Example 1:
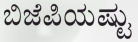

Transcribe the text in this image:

ಬಿಜೆಪಿಯಷ್ಟು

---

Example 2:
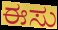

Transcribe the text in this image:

ಈಸು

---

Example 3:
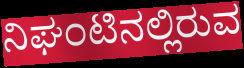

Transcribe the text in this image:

ನಿಘಂಟಿನಲ್ಲಿರುವ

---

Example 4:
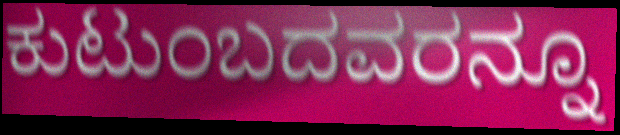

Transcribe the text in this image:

ಕುಟುಂಬದವರನ್ನೂ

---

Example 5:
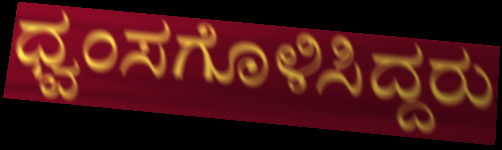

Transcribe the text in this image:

ಧ್ವಂಸಗೊಳಿಸಿದ್ದರು